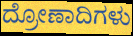
ದ್ರೋಣಾದಿಗಳು